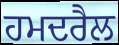
ਹਮਦਰੈਲ